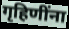
गृहिणींना